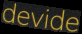
devide